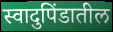
स्वादुपिंडातील